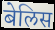
बेलिस